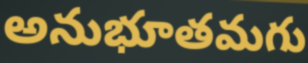
అనుభూతమగు